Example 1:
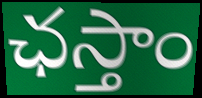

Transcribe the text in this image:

ఛస్తాం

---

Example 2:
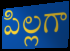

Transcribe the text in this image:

పిల్లగా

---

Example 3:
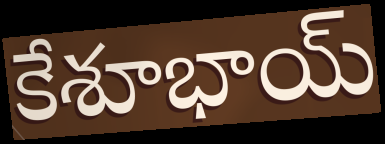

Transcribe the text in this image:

కేశూభాయ్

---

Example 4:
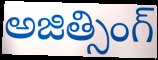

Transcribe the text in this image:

అజిత్సింగ్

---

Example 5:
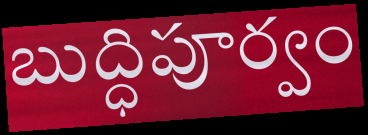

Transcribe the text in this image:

బుద్ధిపూర్వం